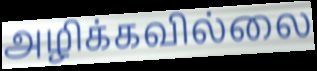
அழிக்கவில்லை